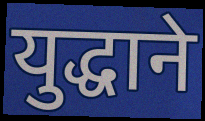
युद्धाने